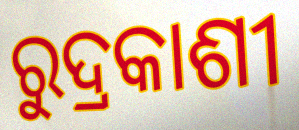
ରୁଦ୍ରକାଶୀ